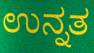
ಉನ್ನತ